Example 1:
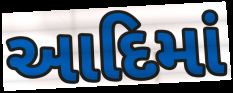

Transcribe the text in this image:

આદિમાં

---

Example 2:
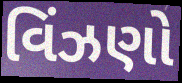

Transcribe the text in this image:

વિંઝણો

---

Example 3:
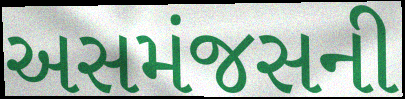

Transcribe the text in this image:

અસમંજસની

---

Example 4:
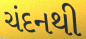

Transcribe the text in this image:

ચંદનથી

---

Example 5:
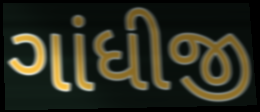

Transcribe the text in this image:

ગાંધીજી